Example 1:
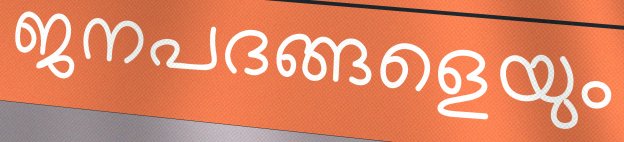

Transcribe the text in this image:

ജനപദങ്ങളെയും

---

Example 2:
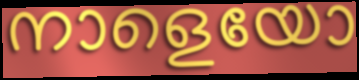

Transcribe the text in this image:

നാളെയോ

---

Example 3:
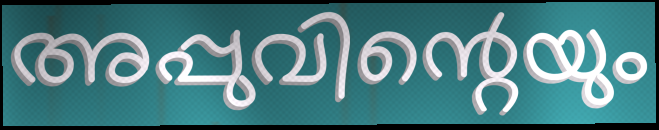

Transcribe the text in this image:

അപ്പുവിന്റെയും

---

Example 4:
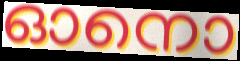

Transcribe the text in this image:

ഓനൊ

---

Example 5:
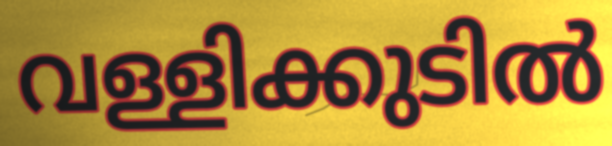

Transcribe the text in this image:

വള്ളിക്കുടിൽ